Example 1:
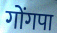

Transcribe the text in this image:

गोंगपा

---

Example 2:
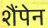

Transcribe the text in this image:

शैंपेन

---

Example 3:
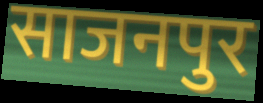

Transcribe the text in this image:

साजनपुर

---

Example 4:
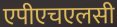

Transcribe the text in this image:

एपीएचएलसी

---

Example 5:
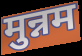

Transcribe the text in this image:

मुन्नम